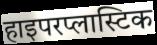
हाइपरप्लास्टिक